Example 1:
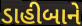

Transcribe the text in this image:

ડાહીબાને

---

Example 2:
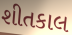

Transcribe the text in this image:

શીતકાલ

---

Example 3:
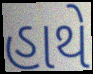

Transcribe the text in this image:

હાથે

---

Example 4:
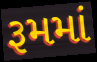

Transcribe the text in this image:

રૂમમાં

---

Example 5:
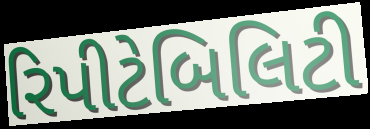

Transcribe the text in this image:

રિપીટેબિલિટી